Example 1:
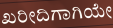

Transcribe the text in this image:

ಖರೀದಿಗಾಗಿಯೇ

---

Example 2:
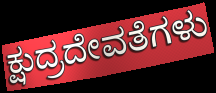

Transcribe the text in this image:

ಕ್ಷುದ್ರದೇವತೆಗಳು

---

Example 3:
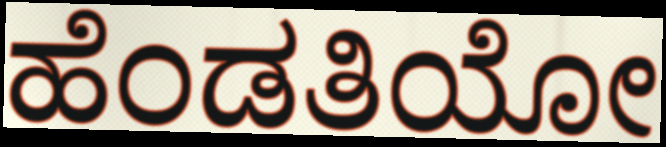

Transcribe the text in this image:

ಹೆಂಡತಿಯೋ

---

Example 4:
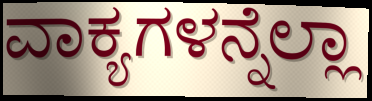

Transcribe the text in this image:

ವಾಕ್ಯಗಳನ್ನೆಲ್ಲಾ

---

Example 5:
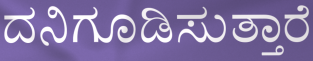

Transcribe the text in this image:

ದನಿಗೂಡಿಸುತ್ತಾರೆ